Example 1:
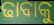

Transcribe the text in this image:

ଢାବାକୁ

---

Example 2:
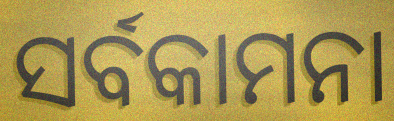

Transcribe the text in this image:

ସର୍ବକାମନା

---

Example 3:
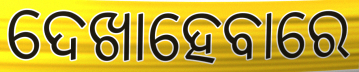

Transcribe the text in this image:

ଦେଖାହେବାରେ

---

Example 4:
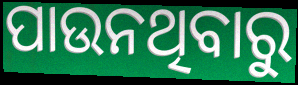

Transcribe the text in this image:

ପାଉନଥିବାରୁ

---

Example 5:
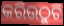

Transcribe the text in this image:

କରିଉଠୁଚି